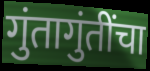
गुंतागुंतींचा